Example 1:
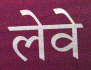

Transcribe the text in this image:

लेवे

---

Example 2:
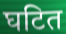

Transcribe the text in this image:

घटित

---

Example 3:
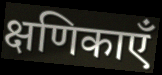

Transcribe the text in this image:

क्षणिकाएँ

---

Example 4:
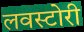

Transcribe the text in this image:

लवस्‍टोरी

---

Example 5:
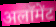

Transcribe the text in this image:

अलॉमेंट